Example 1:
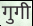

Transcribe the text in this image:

गुगी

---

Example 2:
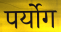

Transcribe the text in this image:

पर्योग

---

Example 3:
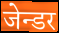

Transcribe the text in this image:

जेन्डर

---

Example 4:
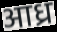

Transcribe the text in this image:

आध्र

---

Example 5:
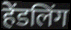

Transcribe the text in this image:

हेंडलिंग